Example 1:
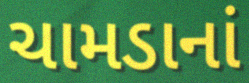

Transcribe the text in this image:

ચામડાનાં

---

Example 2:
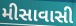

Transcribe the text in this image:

મીસાવાસી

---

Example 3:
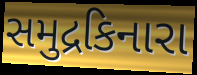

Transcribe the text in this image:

સમુદ્રકિનારા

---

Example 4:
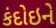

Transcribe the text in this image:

કંદોઇને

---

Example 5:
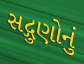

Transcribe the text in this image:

સદ્ગુણોનું